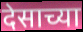
देसाच्या